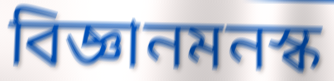
বিজ্ঞানমনস্ক